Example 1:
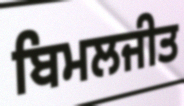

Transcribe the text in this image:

ਬਿਮਲਜੀਤ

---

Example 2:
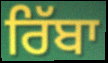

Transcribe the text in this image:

ਰਿੱਬਾ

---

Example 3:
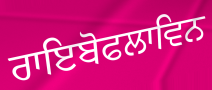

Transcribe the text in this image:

ਰਾਇਬੋਫਲਾਵਿਨ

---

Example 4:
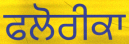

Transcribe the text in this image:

ਫਲੋਰੀਕਾ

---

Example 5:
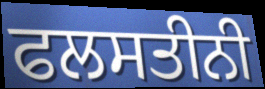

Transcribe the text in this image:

ਫਲਸਤੀਨੀ